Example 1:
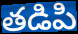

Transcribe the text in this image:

తడిపి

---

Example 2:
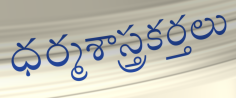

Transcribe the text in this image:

ధర్మశాస్త్రకర్తలు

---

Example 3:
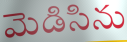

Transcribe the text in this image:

మెడిసిను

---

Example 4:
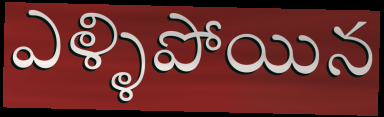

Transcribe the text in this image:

ఎళ్ళిపోయిన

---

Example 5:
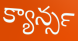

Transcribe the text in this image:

క్యాన్సర్‍